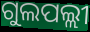
ଗୁଲପଲ୍ଲୀ